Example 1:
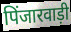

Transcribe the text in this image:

पिंजारवाड़ी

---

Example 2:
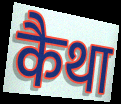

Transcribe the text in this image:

कैथा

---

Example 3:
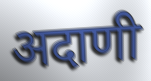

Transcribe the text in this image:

अदाणी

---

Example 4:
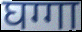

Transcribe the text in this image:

घग्गा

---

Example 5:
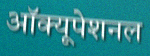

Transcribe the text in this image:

ऑक्यूपेशनल